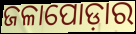
ଜଳାପୋଡ଼ାର